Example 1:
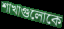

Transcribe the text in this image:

শাখাগুলোকে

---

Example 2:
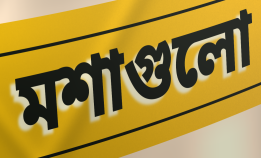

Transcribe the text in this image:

মশাগুলো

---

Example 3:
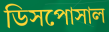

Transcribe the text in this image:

ডিসপোসাল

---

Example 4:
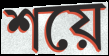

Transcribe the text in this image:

শয়ে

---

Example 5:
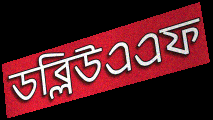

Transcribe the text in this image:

ডব্লিউএএফ